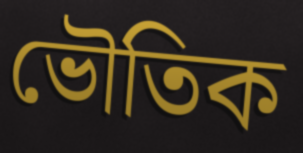
ভৌতিক